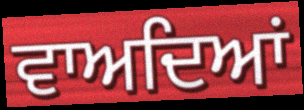
ਵਾਅਦਿਆਂ